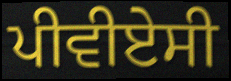
ਪੀਵੀਏਸੀ